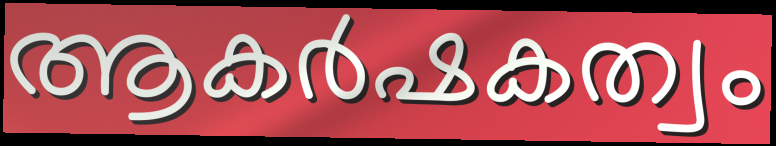
ആകർഷകത്വം